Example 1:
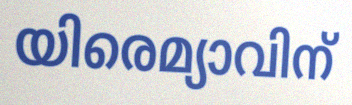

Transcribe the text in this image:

യിരെമ്യാവിന്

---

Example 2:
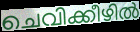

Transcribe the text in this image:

ചെവിക്കീഴിൽ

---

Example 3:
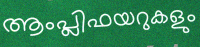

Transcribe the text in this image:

ആംപ്ലിഫയറുകളും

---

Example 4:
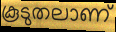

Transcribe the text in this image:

കൂടുതലാണ്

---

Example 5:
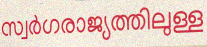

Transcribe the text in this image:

സ്വർഗരാജ്യത്തിലുള്ള